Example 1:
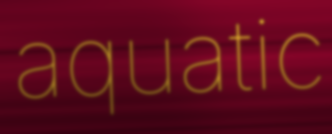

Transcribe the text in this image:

aquatic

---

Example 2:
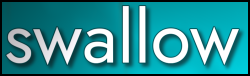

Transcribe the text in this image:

swallow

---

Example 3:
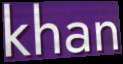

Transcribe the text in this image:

khan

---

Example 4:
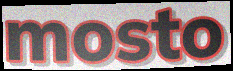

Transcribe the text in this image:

mosto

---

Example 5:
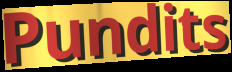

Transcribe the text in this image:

Pundits